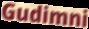
Gudimni